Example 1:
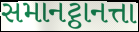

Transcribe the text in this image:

સમાનટ્ઠાનત્તા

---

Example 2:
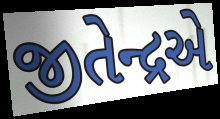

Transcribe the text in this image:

જીતેન્દ્રએ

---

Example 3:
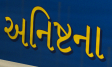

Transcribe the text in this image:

અનિષ્ટના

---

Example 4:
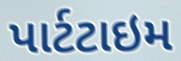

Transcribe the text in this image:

પાર્ટટાઇમ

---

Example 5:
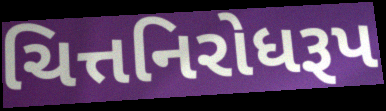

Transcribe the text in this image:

ચિત્તનિરોધરૂપ